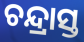
ଚନ୍ଦ୍ରାସ୍ତ